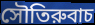
সৌতিরুবাচ